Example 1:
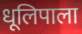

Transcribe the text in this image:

धूलिपाला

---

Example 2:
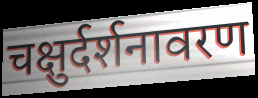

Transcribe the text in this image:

चक्षुर्दर्शनावरण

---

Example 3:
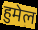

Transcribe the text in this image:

हुमेल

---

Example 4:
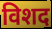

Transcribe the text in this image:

विशद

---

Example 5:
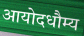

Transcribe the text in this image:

आयोदधौम्य